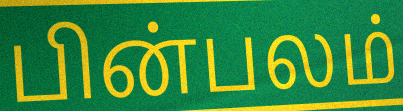
பின்பலம்